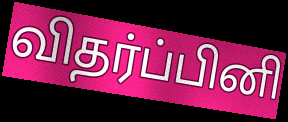
விதர்ப்பினி